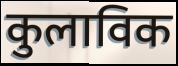
कुलाविक